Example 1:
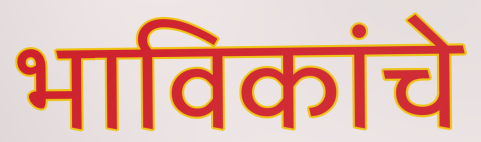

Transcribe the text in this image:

भाविकांचे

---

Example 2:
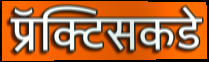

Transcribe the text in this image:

प्रॅक्टिसकडे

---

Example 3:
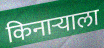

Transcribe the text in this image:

किनाऱ्याला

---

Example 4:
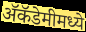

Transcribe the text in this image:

ॲकॅडेमीमध्ये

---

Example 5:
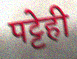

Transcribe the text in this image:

पट्टेही